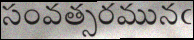
సంవత్సరమునఁ